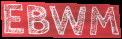
EBWM